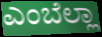
ಎಂಬೆಲ್ಲಾ